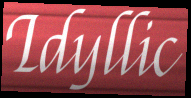
Idyllic